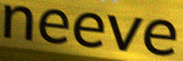
neeve